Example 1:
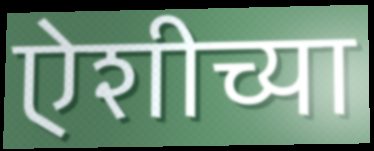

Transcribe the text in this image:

ऐशीच्या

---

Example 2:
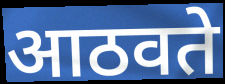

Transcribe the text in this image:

आठवते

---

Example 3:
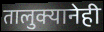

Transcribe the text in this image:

तालुक्यानेही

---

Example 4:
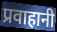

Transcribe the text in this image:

प्रवाहानी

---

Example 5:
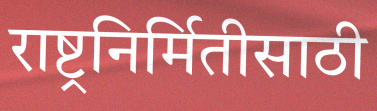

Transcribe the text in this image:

राष्ट्रनिर्मितीसाठी